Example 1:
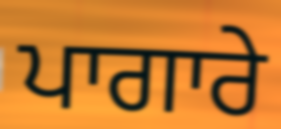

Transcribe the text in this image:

ਪਾਗਾਰੇ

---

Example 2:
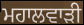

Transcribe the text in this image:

ਮਹਾਲਵਾੜੀ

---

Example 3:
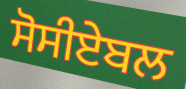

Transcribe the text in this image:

ਸੋਸੀਏਬਲ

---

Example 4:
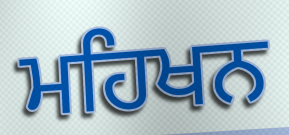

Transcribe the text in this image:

ਮਹਿਖਨ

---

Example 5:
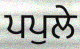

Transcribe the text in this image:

ਪਪੁਲੇ